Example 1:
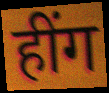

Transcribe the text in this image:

हींग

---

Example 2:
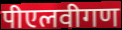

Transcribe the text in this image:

पीएलवीगण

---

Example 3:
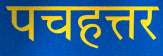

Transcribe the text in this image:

पचहत्तर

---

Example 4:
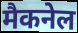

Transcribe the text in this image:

मैकनेल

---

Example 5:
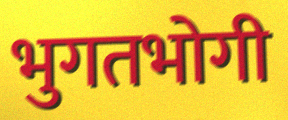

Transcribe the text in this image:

भुगतभोगी